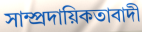
সাম্প্ৰদায়িকতাবাদী